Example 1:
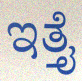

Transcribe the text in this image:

ಇತ್ತೈ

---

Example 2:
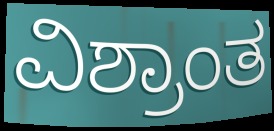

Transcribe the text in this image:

ವಿಶ್ರಾಂತ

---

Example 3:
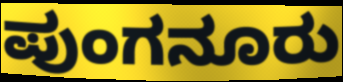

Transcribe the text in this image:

ಪುಂಗನೂರು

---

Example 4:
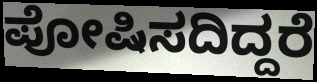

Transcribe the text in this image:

ಪೋಷಿಸದಿದ್ದರೆ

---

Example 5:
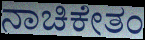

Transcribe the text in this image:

ನಾಚಿಕೇತಂ